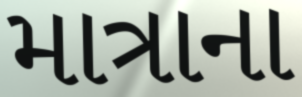
માત્રાના